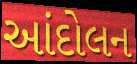
આંદોલન